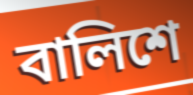
বালিশে